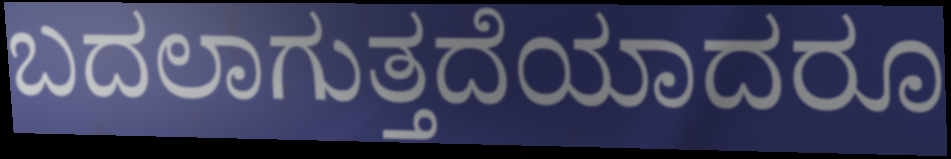
ಬದಲಾಗುತ್ತದೆಯಾದರೂ